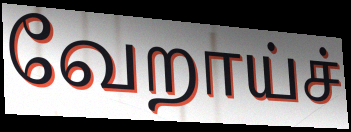
வேறாய்ச்